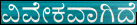
ವಿವೇಕವಾಗಿದೆ